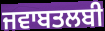
ਜਵਾਬਤਲਬੀ